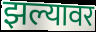
झल्यावर